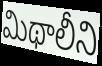
మిథాలీని